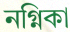
নগ্নিকা